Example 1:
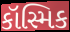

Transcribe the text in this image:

કૉસ્મિક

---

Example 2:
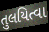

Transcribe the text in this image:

તુલયિત્વા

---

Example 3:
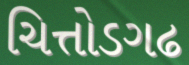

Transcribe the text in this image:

ચિત્તોડગઢ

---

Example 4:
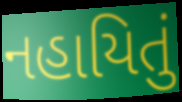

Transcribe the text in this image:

નહાયિતું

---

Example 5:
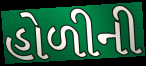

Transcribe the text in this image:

હોળીની